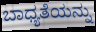
ಬಾಧ್ಯತೆಯನ್ನು